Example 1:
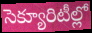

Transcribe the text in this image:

సెక్యూరిటీల్లో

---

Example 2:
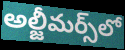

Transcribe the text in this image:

అల్జీమర్స్‌లో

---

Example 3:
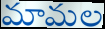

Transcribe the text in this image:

మామల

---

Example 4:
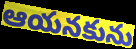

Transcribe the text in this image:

ఆయనకును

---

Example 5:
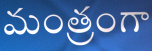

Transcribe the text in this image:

మంత్రంగా